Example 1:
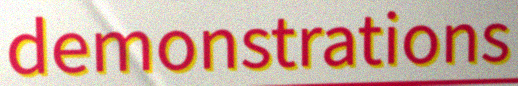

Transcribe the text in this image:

demonstrations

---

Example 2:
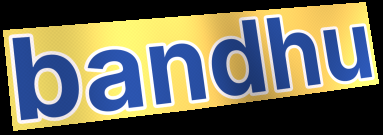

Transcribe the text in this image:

bandhu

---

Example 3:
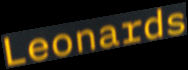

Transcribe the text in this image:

Leonards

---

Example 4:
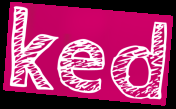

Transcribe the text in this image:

ked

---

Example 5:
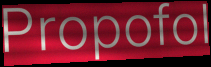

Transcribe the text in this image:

Propofol